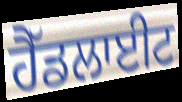
ਹੈੱਡਲਾਈਟ